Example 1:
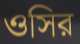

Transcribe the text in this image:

ওসির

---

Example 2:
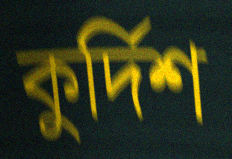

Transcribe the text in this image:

কুর্দিশ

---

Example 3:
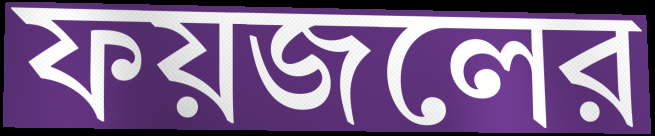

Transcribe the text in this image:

ফয়জলের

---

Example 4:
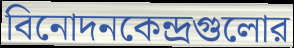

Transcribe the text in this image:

বিনোদনকেন্দ্রগুলোর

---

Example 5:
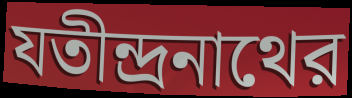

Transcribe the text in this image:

যতীন্দ্রনাথের